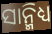
ସାନ୍ମିଧ୍ୟ